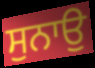
ਸੁਨਾਉ